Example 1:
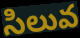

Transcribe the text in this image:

సిలువ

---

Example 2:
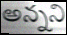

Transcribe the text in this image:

అన్నని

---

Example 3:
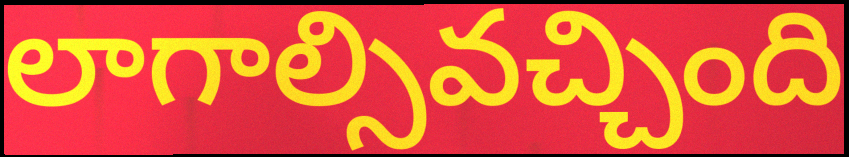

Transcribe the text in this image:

లాగాల్సివచ్చింది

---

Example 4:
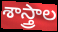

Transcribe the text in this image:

శాస్త్రాల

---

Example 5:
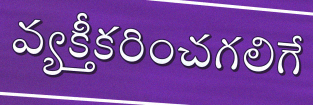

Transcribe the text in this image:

వ్యక్తీకరించగలిగే